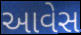
આવેસ